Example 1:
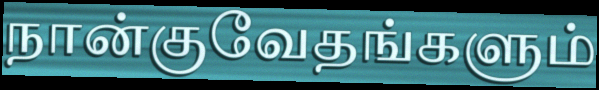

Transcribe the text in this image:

நான்குவேதங்களும்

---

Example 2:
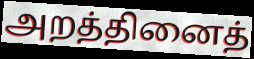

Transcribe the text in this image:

அறத்தினைத்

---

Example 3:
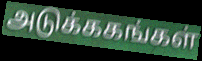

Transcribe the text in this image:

அடுக்ககங்கள்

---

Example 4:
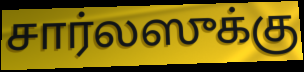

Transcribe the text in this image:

சார்லஸுக்கு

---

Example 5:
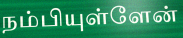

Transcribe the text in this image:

நம்பியுள்ளேன்